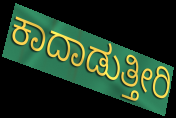
ಕಾದಾಡುತ್ತೀರಿ